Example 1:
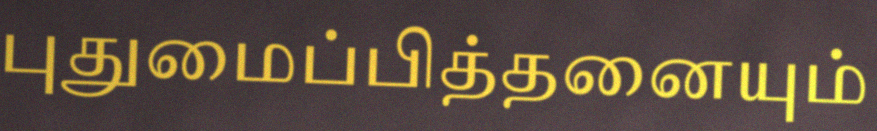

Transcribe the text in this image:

புதுமைப்பித்தனையும்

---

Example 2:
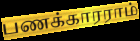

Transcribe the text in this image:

பணக்காரராம்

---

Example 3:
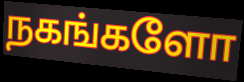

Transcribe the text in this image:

நகங்களோ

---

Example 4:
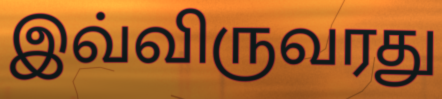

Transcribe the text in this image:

இவ்விருவரது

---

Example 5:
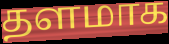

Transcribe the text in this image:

தளமாக